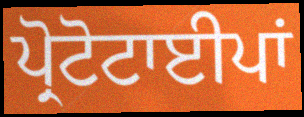
ਪ੍ਰੋਟੋਟਾਈਪਾਂ